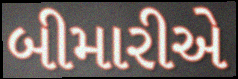
બીમારીએ